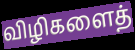
விழிகளைத்